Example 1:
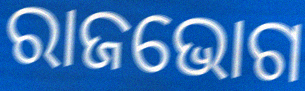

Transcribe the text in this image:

ରାଜଭୋଗ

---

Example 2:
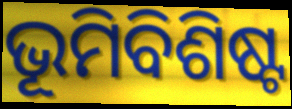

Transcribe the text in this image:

ଭୂମିବିଶିଷ୍ଟ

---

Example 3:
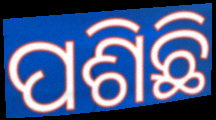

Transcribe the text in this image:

ପଶିଛି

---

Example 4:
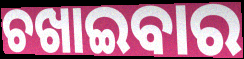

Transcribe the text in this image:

ଚଖାଇବାର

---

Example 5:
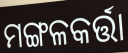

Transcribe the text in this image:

ମଙ୍ଗଳକର୍ତ୍ତା